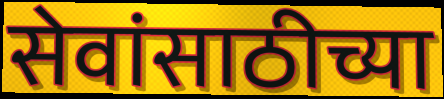
सेवांसाठीच्या